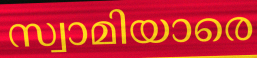
സ്വാമിയാരെ